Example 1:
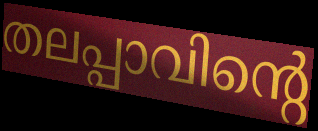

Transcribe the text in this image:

തലപ്പാവിന്റെ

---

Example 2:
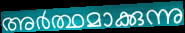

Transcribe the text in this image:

അർത്ഥമാക്കുന്നു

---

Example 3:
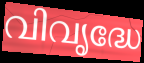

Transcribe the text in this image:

വിവൃദ്ധേ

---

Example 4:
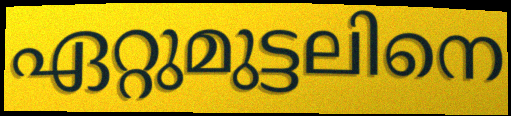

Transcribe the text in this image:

ഏറ്റുമുട്ടലിനെ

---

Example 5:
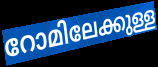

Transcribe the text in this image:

റോമിലേക്കുള്ള